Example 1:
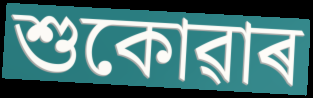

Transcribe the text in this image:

শুকোৱাৰ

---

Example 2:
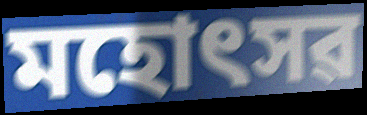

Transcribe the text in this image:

মহোৎসৱ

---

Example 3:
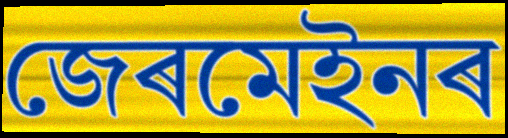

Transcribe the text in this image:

জেৰমেইনৰ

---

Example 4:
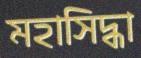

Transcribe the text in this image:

মহাসিদ্ধা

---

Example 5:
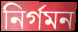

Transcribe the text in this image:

নিৰ্গমন